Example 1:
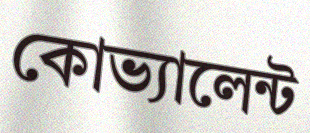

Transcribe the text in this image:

কোভ্যালেন্ট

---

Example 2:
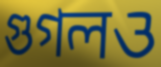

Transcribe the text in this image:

গুগলও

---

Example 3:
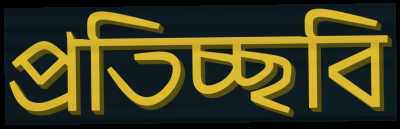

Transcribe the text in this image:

প্রতিচ্ছবি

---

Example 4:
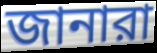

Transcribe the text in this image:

জানারা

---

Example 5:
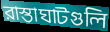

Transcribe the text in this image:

রাস্তাঘাটগুলি